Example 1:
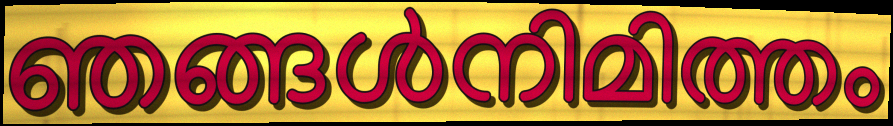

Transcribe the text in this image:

ഞങ്ങൾനിമിത്തം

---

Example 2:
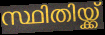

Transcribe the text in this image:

സ്ഥിതിയ്ക്ക്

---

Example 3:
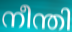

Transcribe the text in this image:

നീന്തി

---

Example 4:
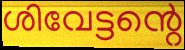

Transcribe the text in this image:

ശിവേട്ടന്റെ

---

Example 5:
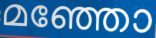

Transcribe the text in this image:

മഞ്ഞോ